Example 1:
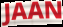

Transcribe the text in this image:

JAAN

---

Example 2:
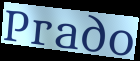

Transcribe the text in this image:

Prado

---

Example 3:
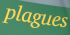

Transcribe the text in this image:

plagues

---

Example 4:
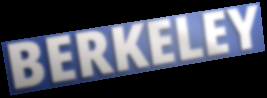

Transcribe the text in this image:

BERKELEY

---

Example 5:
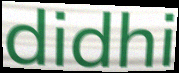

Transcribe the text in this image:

didhi